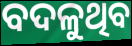
ବଦଳୁଥିବ